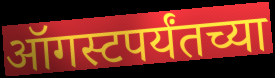
ऑगस्टपर्यंतच्या